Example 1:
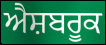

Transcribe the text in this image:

ਐਸ਼ਬਰੂਕ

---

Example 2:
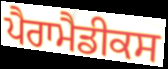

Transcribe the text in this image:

ਪੈਰਾਮੈਡੀਕਸ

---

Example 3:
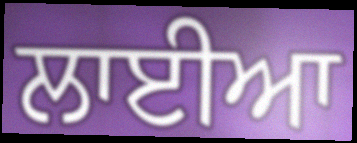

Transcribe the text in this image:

ਲਾਈਆ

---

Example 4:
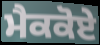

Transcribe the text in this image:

ਮੈਕਕੋਏ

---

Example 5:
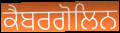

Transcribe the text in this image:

ਕੈਬਰਗੋਲਿਨ